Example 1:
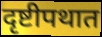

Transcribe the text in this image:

दृष्टीपथात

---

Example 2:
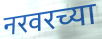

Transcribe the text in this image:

नरवरच्या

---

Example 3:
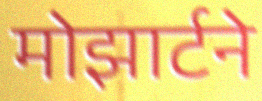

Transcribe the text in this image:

मोझार्टने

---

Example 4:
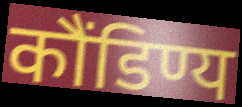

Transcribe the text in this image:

कौंडिण्य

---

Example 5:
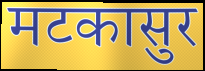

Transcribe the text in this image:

मटकासुर